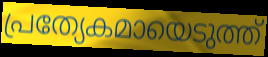
പ്രത്യേകമായെടുത്ത്